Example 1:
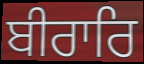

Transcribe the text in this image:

ਬੀਰਾਰਿ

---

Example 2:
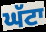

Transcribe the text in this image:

ਘੱਟਾ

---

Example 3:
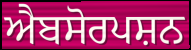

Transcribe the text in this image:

ਐਬਸੋਰਪਸ਼ਨ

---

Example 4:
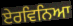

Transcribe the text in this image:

ਏਰਵਿਨਿਆ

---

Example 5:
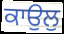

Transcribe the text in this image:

ਕਾਉਲੁ